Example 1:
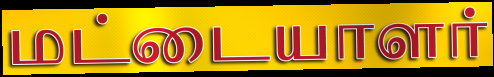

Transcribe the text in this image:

மட்டையாளர்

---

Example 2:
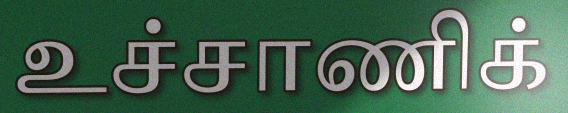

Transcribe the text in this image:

உச்சாணிக்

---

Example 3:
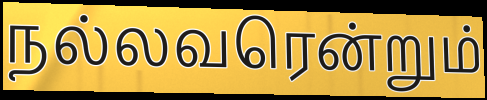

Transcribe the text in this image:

நல்லவரென்றும்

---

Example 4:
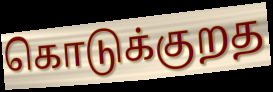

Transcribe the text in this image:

கொடுக்குறத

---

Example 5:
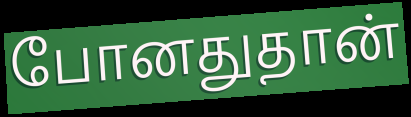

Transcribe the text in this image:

போனதுதான்